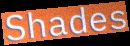
Shades